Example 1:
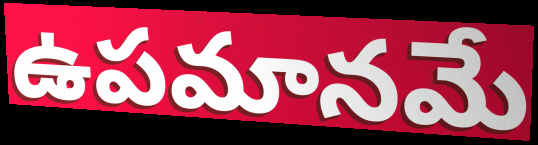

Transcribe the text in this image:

ఉపమానమే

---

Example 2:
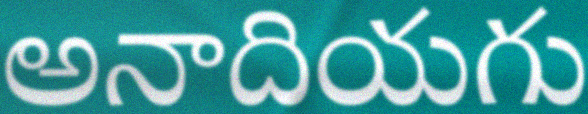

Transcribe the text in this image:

అనాదియగు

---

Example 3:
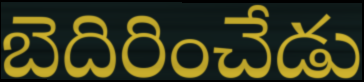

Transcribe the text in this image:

బెదిరించేడు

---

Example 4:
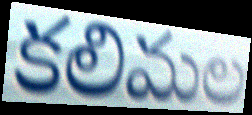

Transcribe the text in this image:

కలిమల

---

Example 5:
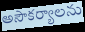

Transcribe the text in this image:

అసౌకర్యాలను